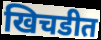
खिचडीत